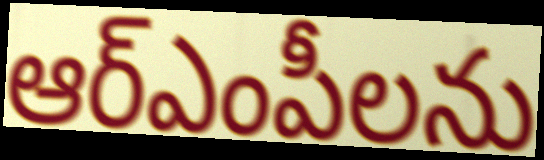
ఆర్ఎంపీలను